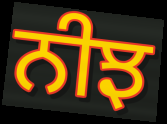
ਨੀਝ